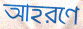
আহরণে